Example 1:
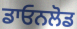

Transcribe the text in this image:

ਡਾਓਨਲੋਡ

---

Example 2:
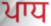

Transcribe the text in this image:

ਪਾਧ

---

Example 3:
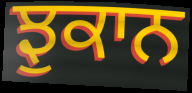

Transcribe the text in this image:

ਝੁਕਾਨ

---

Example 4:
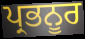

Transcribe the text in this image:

ਪ੍ਰਭਨੂਰ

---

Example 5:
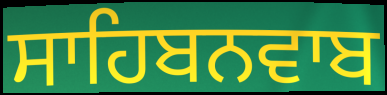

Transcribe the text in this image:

ਸਾਹਿਬਨਵਾਬ